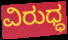
ವಿರುಧ್ಧ